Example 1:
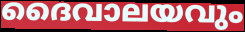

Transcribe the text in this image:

ദൈവാലയവും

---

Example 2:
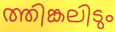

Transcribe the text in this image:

ത്തിങ്കലിടും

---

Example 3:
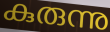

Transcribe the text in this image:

കുരുന്നു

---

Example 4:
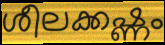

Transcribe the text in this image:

ശീലക്കഷ്ണം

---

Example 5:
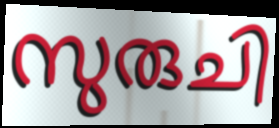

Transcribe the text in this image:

സുരുചി